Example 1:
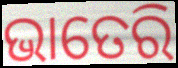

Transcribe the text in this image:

ଭାତେରି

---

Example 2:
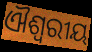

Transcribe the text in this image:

ଐଶ୍ୱରୀୟ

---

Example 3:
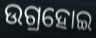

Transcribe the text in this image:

ଉଗ୍ରହୋଇ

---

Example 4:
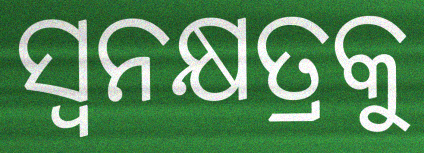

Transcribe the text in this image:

ସ୍ୱନକ୍ଷତ୍ରକୁ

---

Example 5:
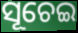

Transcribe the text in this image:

ସୂଚେଇ